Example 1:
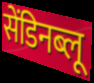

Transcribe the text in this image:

सेंडिनब्लू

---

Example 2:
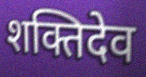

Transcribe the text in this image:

शक्तिदेव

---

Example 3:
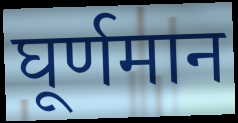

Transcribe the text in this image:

घूर्णमान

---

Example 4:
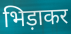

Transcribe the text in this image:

भिड़ाकर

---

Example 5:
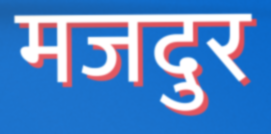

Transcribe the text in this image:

मजदुर